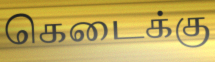
கெடைக்கு